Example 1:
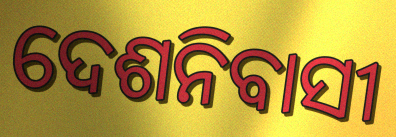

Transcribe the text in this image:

ଦେଶନିବାସୀ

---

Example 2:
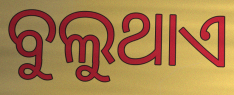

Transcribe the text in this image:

ବୁଲୁଥାଏ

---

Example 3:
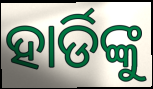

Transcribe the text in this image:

ହାର୍ଡିଙ୍କୁ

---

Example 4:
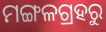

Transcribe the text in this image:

ମଙ୍ଗଳଗ୍ରହରୁ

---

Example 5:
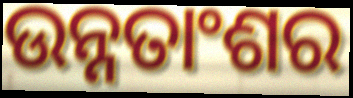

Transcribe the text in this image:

ଉନ୍ନତାଂଶର